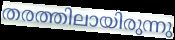
തരത്തിലായിരുന്നു